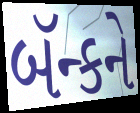
બૅન્કને